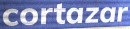
cortazar